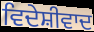
ਵਿਦੇਸ਼ੀਵਾਦ